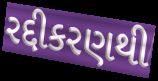
રદ્દીકરણથી